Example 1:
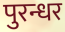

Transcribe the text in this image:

पुरन्धर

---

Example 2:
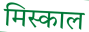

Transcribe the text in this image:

मिस्काल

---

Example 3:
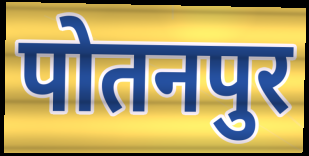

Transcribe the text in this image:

पोतनपुर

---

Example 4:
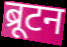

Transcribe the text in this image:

ब्रूटन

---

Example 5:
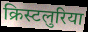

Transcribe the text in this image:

क्रिस्टलुरिया